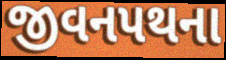
જીવનપથના